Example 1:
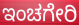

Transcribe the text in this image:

ಇಂಚಗೇರಿ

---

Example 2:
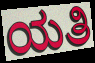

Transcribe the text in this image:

ಯತಿ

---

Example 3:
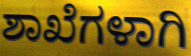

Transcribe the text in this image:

ಶಾಖೆಗಳಾಗಿ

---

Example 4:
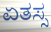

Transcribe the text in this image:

ಏತಸ್ಸ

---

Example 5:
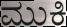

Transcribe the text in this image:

ಮುಕಿ